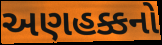
અણહક્કનો